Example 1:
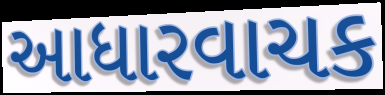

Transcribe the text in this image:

આધારવાચક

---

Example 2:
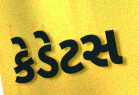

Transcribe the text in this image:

કેડેટસ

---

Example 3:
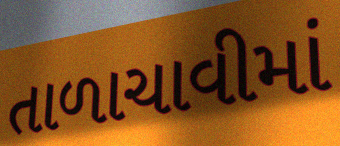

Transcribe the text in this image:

તાળાચાવીમાં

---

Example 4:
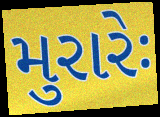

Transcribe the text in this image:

મુરારેઃ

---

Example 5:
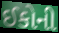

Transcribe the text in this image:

ઈકોની